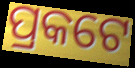
ପ୍ରକଟେ